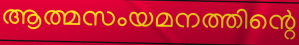
ആത്മസംയമനത്തിന്റെ